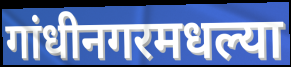
गांधीनगरमधल्या